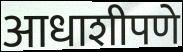
आधाशीपणे